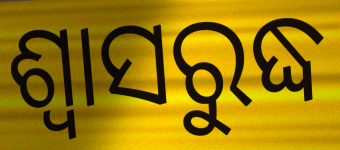
ଶ୍ବାସରୁଦ୍ଧ